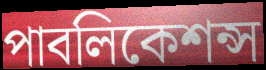
পাবলিকেশন্স